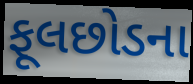
ફૂલછોડના